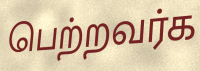
பெற்றவர்க